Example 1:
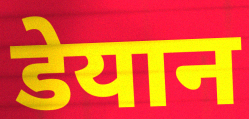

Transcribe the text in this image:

डेयान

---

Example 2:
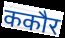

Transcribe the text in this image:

ककौर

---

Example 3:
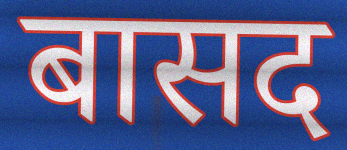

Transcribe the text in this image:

बासद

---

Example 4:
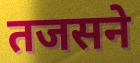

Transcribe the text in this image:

तजसने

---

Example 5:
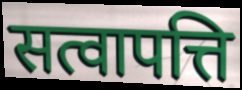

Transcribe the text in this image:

सत्वापत्ति